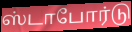
ஸ்டாபோர்டு